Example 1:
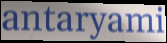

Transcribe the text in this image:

antaryami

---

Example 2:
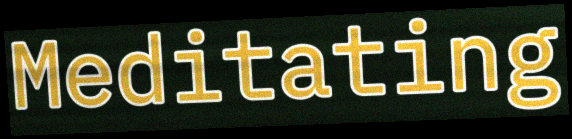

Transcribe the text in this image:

Meditating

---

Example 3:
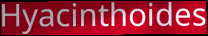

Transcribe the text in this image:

Hyacinthoides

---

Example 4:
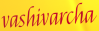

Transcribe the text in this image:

vashivarcha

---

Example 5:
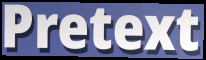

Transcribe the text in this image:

Pretext